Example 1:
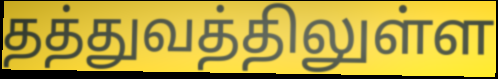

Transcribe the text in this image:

தத்துவத்திலுள்ள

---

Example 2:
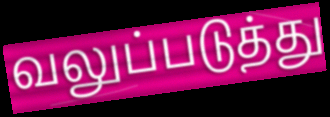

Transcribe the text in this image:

வலுப்படுத்து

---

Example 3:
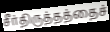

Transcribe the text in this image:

சீர்திருத்தத்தைச்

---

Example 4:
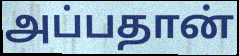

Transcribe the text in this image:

அப்பதான்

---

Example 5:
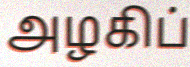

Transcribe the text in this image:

அழகிப்